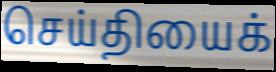
செய்தியைக்